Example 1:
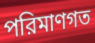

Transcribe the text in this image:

পরিমাণগত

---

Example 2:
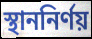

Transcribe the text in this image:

স্থাননির্ণয়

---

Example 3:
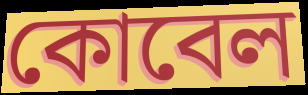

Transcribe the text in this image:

কোবেল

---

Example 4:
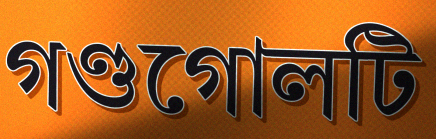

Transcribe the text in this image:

গণ্ডগোলটি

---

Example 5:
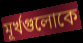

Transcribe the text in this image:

মূর্খগুলোকে